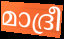
മാദ്രീ